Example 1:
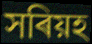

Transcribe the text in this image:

সৰিয়হ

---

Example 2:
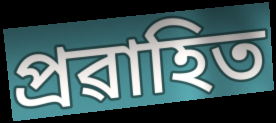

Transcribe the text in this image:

প্ৰৱাহিত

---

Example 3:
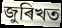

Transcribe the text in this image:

জুৰিখত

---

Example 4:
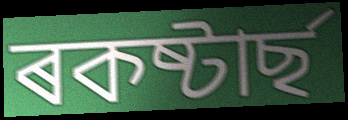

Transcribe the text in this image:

ৰকষ্টাৰ্ছ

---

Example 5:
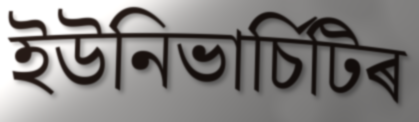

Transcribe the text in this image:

ইউনিভাৰ্চিটিৰ